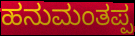
ಹನುಮಂತಪ್ಪ